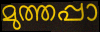
മുത്തപ്പാ